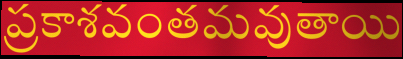
ప్రకాశవంతమవుతాయి